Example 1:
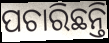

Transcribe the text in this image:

ପଚାରିଛନ୍ତି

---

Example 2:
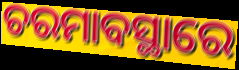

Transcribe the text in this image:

ଚରମାବସ୍ଥାରେ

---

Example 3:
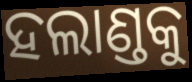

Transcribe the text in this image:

ହଲାଣ୍ଡକୁ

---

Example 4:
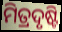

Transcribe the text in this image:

ମିତ୍ରଦୃଷ୍ଟି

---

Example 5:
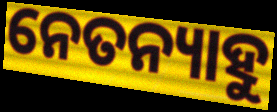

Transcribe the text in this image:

ନେତନ୍ୟାହୁ